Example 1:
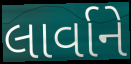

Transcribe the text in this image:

લાર્વાને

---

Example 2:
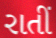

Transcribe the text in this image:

રાતીં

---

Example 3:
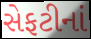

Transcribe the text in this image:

સેફટીનાં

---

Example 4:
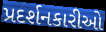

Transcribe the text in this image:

પ્રદર્શનકારીઓ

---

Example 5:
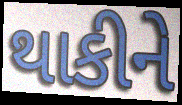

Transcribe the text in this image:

થાકીને